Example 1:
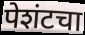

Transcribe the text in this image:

पेशंटचा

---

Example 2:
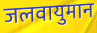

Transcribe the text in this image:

जलवायुमान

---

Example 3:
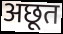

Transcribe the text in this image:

अछूत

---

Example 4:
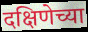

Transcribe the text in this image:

दक्षिणेच्या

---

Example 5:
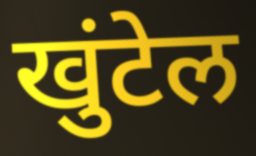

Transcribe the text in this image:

खुंटेल